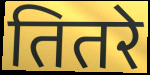
तितरे